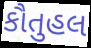
કૌતુહલ